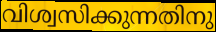
വിശ്വസിക്കുന്നതിനു